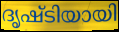
ദൃഷ്ടിയായി